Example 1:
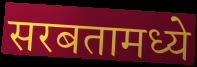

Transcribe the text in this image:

सरबतामध्ये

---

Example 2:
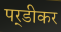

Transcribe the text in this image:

पर्डीकर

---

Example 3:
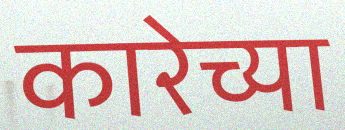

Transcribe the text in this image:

कारेच्या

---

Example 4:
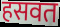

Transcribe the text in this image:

हसवत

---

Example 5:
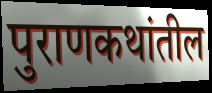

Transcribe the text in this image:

पुराणकथांतील